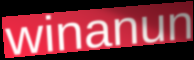
winanun